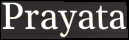
Prayata